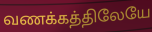
வணக்கத்திலேயே